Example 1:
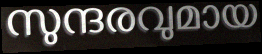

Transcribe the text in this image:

സുന്ദരവുമായ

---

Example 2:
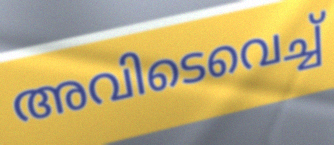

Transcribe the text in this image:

അവിടെവെച്ച്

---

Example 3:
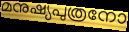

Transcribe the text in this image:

മനുഷ്യപുത്രനോ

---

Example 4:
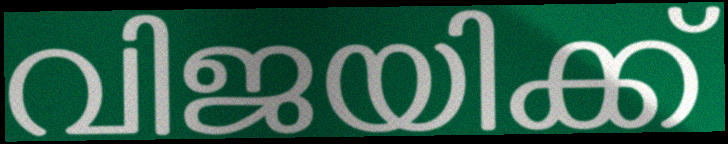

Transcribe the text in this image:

വിജയിക്ക്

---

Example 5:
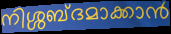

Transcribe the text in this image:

നിശ്ശബ്ദമാക്കാൻ